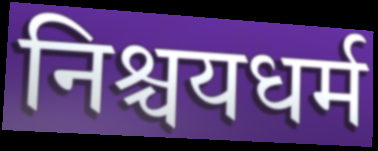
निश्चयधर्म